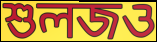
শুলজও